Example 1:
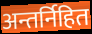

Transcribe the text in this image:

अन्तर्निहित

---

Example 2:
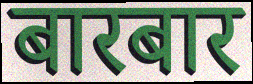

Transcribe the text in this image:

बारबार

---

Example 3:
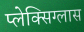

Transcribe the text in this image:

प्लेक्सिग्लास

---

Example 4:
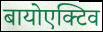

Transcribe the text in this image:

बायोएक्टिव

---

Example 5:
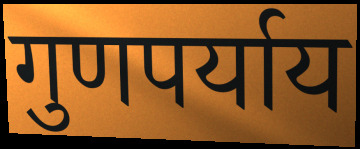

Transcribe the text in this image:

गुणपर्याय